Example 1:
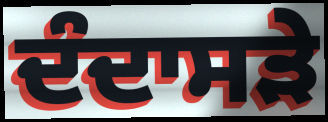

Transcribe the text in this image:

ਦੰਦਾਸੜੇ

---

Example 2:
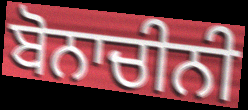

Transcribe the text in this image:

ਬੋਨਾਚੀਨੀ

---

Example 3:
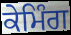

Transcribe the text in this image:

ਕੇਮਿੰਗ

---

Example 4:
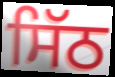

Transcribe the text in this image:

ਸਿੱਠ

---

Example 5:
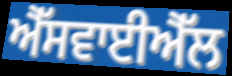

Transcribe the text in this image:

ਐੱਸਵਾਈਐੱਲ